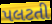
પલટતી